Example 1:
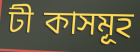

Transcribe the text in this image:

টীকাসমূহ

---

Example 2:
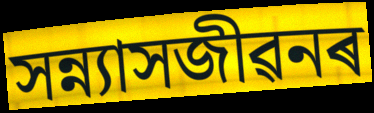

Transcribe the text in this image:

সন্ন্যাসজীৱনৰ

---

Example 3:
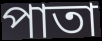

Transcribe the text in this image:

পাতা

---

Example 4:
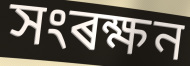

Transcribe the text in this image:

সংৰক্ষন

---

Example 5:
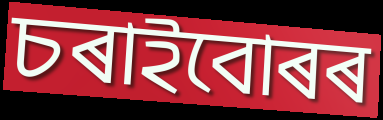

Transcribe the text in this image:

চৰাইবোৰৰ